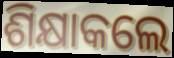
ଶିକ୍ଷାକଲେ